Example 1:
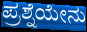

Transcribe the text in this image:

ಪ್ರಶ್ನೆಯೇನು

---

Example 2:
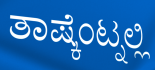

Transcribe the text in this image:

ತಾಷ್ಕೆಂಟ್ನಲ್ಲಿ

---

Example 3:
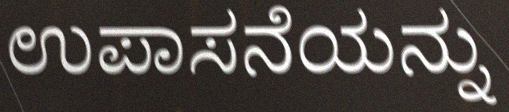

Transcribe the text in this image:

ಉಪಾಸನೆಯನ್ನು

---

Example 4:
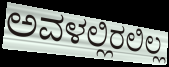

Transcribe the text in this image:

ಅವಳಲ್ಲಿರಲಿಲ್ಲ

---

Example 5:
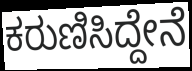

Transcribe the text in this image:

ಕರುಣಿಸಿದ್ದೇನೆ